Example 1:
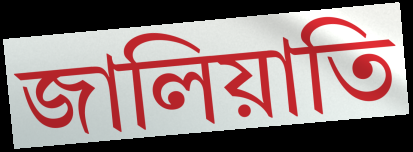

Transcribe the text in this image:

জালিয়াতি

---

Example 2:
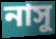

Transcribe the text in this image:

নাসু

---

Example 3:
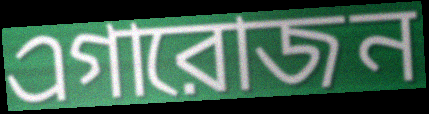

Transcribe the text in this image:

এগারোজন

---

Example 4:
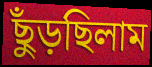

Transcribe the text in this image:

ছুঁড়ছিলাম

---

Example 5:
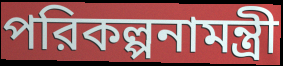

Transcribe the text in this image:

পরিকল্পনামন্ত্রী